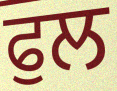
ਫੁਲ